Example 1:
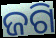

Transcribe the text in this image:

ଜଗି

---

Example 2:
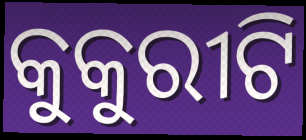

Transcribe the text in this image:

କୁକୁରୀଟି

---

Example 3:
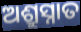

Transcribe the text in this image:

ଅଶ୍ରୁସ୍ନାତ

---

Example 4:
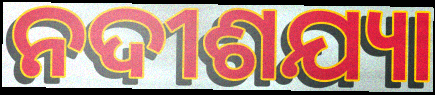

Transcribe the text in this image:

ନଦୀଶଯ୍ୟା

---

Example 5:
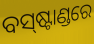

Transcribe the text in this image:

ବସ୍‌ଷ୍ଟାଣ୍ଡରେ